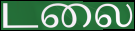
டலை